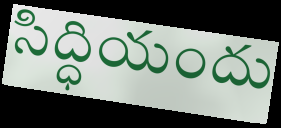
సిద్ధియందు